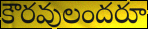
కౌరవులందరూ